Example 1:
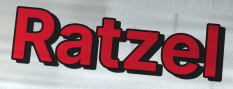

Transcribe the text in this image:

Ratzel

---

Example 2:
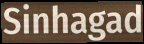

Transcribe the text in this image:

Sinhagad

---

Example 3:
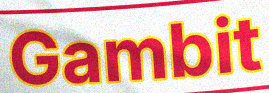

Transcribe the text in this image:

Gambit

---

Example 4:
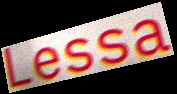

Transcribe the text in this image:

Lessa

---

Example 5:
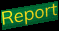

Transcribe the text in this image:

Report